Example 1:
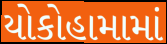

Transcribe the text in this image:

યોકોહામામાં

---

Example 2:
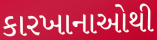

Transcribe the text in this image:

કારખાનાઓથી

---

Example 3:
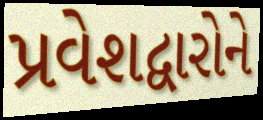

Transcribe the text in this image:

પ્રવેશદ્વારોને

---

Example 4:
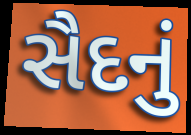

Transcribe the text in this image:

સૈદનું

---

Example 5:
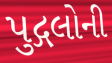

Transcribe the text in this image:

પુદ્ગલોની